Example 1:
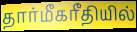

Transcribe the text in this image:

தார்மீகரீதியில்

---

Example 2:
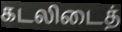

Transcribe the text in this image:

கடலிடைத்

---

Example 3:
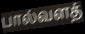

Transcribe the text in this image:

பால்வளத்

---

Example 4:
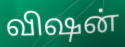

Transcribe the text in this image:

விஷன்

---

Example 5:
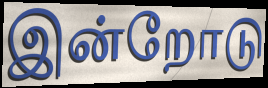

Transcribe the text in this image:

இன்றோடு